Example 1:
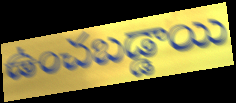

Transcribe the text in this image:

ఉంచబడ్డాయి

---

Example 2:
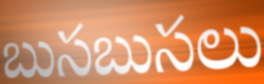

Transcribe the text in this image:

బుసబుసలు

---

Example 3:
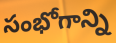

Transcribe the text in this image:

సంభోగాన్ని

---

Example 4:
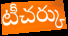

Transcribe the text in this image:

టీచర్కు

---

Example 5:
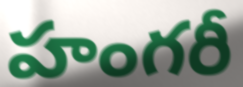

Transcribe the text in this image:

హంగరీ